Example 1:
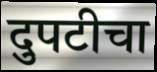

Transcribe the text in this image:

दुपटीचा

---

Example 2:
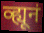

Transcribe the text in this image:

व्ह्यूनं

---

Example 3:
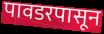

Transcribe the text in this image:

पावडरपासून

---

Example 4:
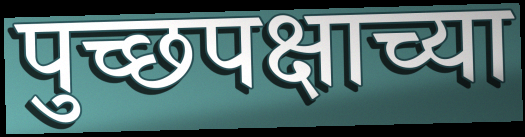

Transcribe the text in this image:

पुच्छपक्षाच्या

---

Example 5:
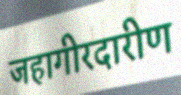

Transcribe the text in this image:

जहागीरदारीण